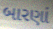
બારણાં